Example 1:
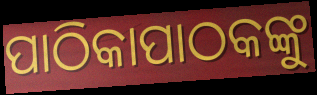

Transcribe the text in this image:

ପାଠିକାପାଠକଙ୍କୁ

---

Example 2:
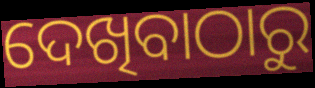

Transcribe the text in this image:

ଦେଖିବାଠାରୁ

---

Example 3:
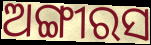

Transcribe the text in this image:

ଅଙ୍ଗୀରସ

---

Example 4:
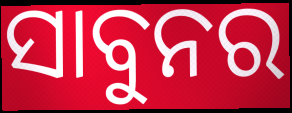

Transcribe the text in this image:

ସାବୁନର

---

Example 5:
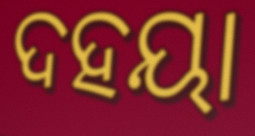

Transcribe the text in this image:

ଦହୟା